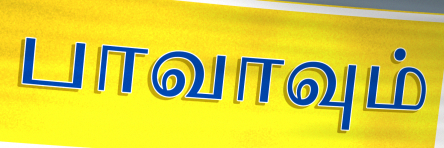
பாவாவும்